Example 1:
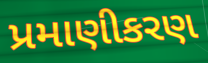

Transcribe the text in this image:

પ્રમાણીકરણ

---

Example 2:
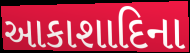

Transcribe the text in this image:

આકાશાદિના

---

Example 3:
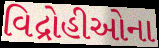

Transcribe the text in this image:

વિદ્રોહીઓના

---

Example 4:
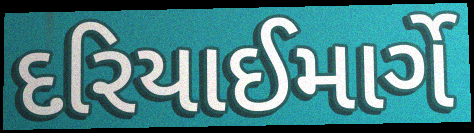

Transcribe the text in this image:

દરિયાઈમાર્ગે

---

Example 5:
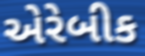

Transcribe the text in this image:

એરેબીક